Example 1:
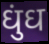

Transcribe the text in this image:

धुंध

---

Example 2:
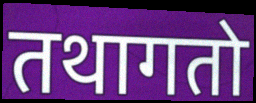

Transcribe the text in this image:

तथागतो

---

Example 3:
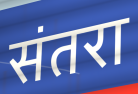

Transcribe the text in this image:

संतरा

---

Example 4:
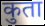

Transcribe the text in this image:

कुता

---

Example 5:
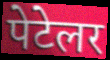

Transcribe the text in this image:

पेटेलर